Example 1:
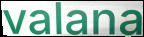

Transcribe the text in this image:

valana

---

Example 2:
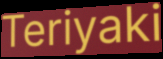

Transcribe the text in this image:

Teriyaki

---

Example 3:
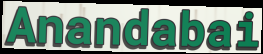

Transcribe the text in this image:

Anandabai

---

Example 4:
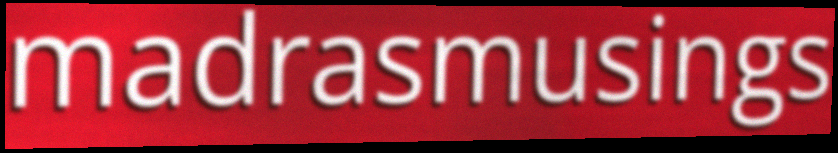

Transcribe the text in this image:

madrasmusings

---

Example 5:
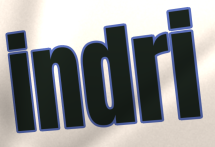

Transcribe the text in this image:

indri